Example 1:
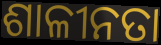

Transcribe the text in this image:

ଶାଳୀନତା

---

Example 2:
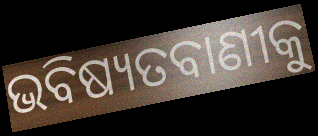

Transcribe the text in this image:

ଭବିଷ୍ୟତବାଣୀକୁ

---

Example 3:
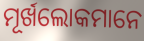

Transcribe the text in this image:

ମୂର୍ଖଲୋକମାନେ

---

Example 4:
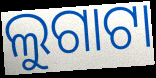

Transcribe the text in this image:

ଲୁଗାଟା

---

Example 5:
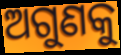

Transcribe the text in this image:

ଅଗୁଣକୁ